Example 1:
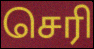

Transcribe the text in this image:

செரி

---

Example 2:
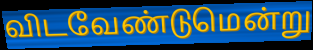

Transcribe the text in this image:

விடவேண்டுமென்று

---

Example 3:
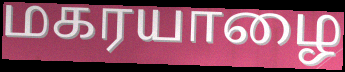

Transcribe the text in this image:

மகரயாழை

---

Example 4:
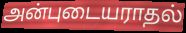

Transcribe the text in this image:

அன்புடையராதல்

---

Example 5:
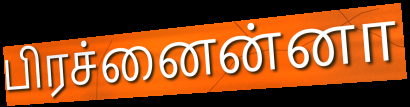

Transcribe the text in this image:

பிரச்னைன்னா